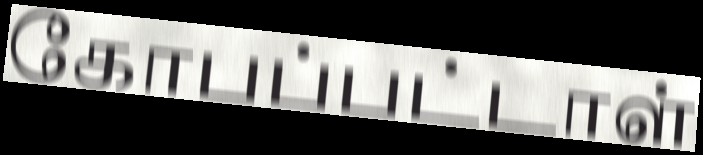
கோபப்பட்டாள்